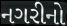
નગરીનો